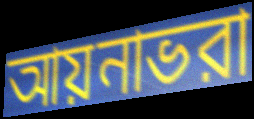
আয়নাভরা